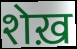
शेख़